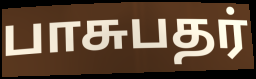
பாசுபதர்